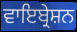
ਵਾਇਬ੍ਰੇਸ਼ਨ